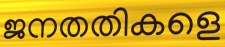
ജനതതികളെ